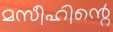
മസീഹിന്റെ